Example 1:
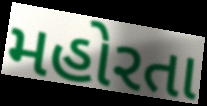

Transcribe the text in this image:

મહોરતા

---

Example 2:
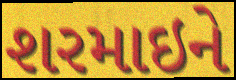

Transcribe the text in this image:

શરમાઇને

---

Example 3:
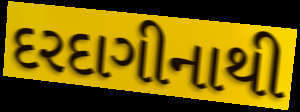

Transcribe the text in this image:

દરદાગીનાથી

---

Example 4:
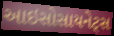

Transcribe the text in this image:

આઇસોસાયનેટ્સ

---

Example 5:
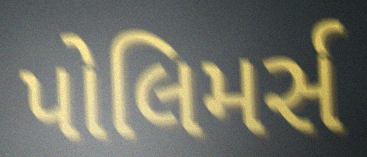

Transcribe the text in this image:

પોલિમર્સ